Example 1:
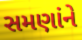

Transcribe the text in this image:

સમણાંને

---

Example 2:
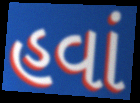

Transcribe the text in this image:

હવાં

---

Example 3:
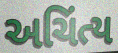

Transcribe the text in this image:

અચિંત્ય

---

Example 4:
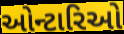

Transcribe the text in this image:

ઓન્ટારિઓ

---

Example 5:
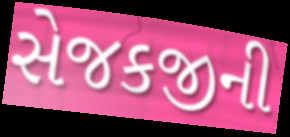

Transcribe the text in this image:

સેજકજીની